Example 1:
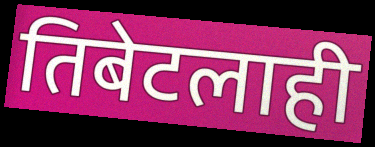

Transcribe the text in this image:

तिबेटलाही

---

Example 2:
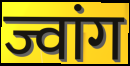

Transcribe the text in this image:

ज्वांग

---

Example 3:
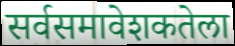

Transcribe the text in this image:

सर्वसमावेशकतेला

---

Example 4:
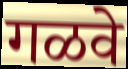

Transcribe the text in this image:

गळवे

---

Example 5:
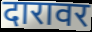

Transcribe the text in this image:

दारावर